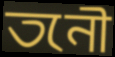
তনৌ